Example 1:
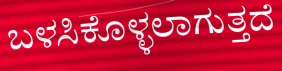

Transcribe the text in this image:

ಬಳಸಿಕೊಳ್ಳಲಾಗುತ್ತದೆ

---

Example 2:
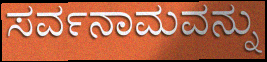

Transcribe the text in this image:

ಸರ್ವನಾಮವನ್ನು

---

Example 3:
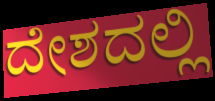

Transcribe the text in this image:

ದೇಶದಲ್ಲಿ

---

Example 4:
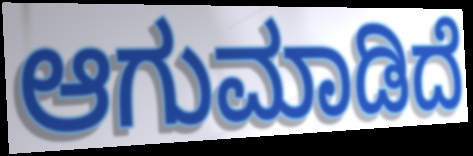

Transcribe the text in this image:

ಆಗುಮಾಡಿದೆ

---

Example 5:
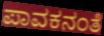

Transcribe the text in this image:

ಪಾವಕನಂತೆ